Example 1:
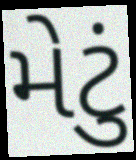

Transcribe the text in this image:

મેટું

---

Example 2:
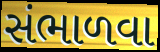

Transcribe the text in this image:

સંભાળવા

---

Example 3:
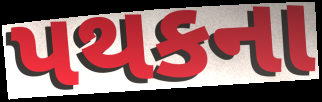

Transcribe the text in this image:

પથકના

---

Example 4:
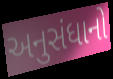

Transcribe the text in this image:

અનુસંધાનો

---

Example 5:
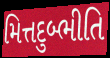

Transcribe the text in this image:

મિત્તદુબ્ભીતિ